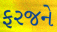
ફરજને